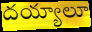
దయ్యాలూ